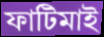
ফাটিমাই